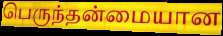
பெருந்தன்மையான